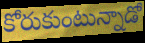
కోరుకుంటున్నాడో